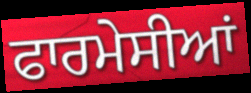
ਫਾਰਮੇਸੀਆਂ